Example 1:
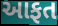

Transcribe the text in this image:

આફત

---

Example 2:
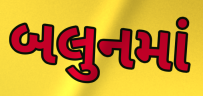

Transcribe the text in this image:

બલુનમાં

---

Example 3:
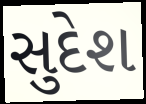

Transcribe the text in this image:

સુદેશ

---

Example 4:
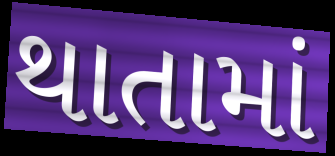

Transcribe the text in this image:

થાતામાં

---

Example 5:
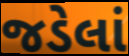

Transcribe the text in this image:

જડેલાં